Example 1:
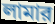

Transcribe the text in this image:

লামার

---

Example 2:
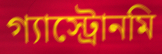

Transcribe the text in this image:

গ্যাস্ট্রোনমি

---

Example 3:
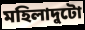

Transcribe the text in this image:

মহিলাদুটো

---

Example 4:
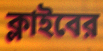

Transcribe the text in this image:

ক্লাইবের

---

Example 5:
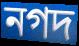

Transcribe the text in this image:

নগদ